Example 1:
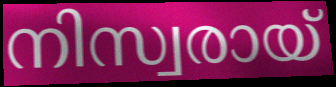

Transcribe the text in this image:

നിസ്വരായ്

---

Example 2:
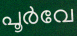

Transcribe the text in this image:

പൂർവേ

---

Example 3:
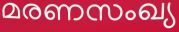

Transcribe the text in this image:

മരണസംഖ്യ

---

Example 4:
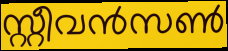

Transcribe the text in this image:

സ്റ്റീവൻസൺ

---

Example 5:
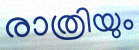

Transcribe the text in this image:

രാത്രിയും